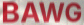
BAWG